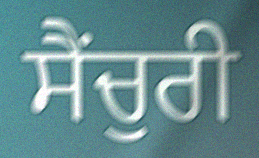
ਸੈਂਚੁਰੀ